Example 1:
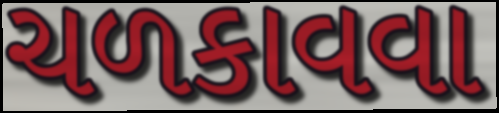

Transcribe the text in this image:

ચળકાવવા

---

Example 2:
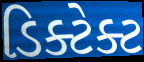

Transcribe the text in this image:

ડિક્ટેક્ટ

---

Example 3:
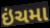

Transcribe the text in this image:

ઇંચમા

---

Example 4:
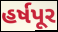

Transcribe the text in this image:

હર્ષપૂર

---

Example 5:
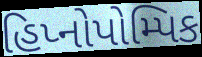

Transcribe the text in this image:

હિપ્નોપોમ્પિક